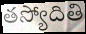
తస్యోదితి